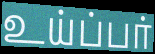
உய்ப்பர்